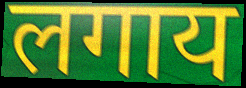
लगाय